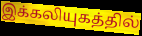
இக்கலியுகத்தில்